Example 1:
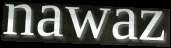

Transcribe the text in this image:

nawaz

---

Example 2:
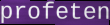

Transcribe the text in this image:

profeten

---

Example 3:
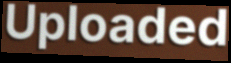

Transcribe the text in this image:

Uploaded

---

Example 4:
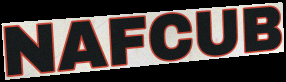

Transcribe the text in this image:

NAFCUB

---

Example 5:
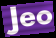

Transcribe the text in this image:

Jeo